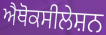
ਐਥੋਕਸੀਲੇਸ਼ਨ